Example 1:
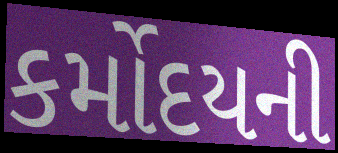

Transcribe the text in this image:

કર્મોદયની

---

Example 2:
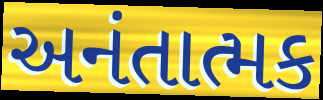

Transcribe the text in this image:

અનંતાત્મક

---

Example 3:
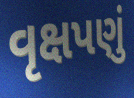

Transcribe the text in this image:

વૃક્ષપણું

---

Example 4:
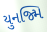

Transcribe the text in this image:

યુનજ્મિ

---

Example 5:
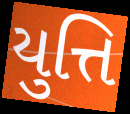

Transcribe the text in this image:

યુત્તિ